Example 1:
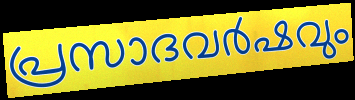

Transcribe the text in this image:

പ്രസാദവർഷവും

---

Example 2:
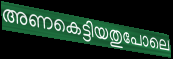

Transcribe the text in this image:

അണകെട്ടിയതുപോലെ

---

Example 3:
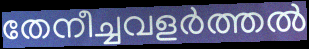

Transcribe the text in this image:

തേനീച്ചവളർത്തൽ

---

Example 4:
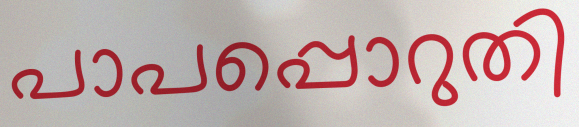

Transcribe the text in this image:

പാപപ്പൊറുതി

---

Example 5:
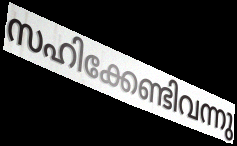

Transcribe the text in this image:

സഹിക്കേണ്ടിവന്നു